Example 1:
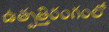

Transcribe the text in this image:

ఉత్పత్తిరంగంలో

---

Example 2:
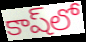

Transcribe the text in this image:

కాష్‌లో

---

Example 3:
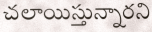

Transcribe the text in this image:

చలాయిస్తున్నారని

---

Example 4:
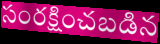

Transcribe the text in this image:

సంరక్షించబడిన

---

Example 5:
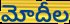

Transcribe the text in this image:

మోదీల